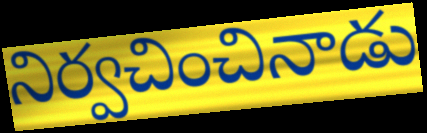
నిర్వచించినాడు